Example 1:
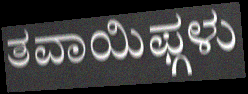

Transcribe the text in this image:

ತವಾಯಿಫ್ಗಳು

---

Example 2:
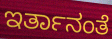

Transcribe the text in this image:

ಇರ್ತಾನಂತೆ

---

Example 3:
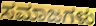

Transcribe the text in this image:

ಸಮಾಜಗಳು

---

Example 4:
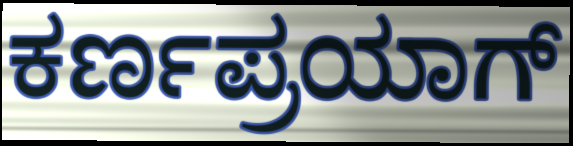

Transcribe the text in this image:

ಕರ್ಣಪ್ರಯಾಗ್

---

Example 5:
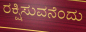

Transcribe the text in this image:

ರಕ್ಷಿಸುವನೆಂದು